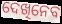
ଦେଖିନେବ